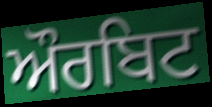
ਔਰਬਿਟ